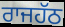
ਰਾਜਹੱਠ